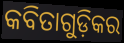
କବିତାଗୁଡ଼ିକର